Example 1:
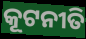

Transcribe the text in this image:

କୂଟନୀତି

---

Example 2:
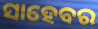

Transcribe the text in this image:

ସାହେବର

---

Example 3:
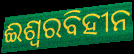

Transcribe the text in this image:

ଈଶ୍ୱରବିହୀନ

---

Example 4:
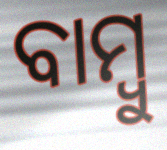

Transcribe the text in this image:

ବାମ୍ବୁ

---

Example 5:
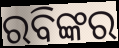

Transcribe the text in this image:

ରବିଙ୍କର